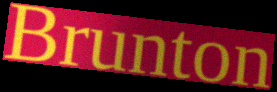
Brunton